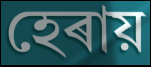
হেৰায়